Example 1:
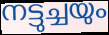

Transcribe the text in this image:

നട്ടുച്ചയും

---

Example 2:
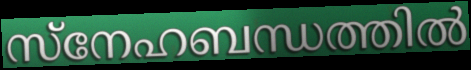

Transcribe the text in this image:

സ്നേഹബന്ധത്തിൽ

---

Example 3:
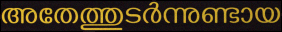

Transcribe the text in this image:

അതേത്തുടർന്നുണ്ടായ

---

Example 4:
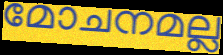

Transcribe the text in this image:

മോചനമല്ല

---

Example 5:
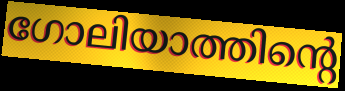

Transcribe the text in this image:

ഗോലിയാത്തിന്റെ